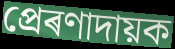
প্ৰেৰণাদায়ক